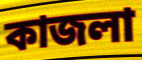
কাজলা